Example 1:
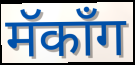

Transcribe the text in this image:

मॅकाँग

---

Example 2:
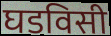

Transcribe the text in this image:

घडविसी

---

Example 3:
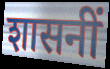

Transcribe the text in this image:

शासनीं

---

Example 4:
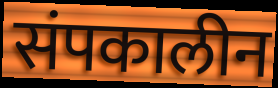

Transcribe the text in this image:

संपकालीन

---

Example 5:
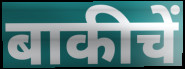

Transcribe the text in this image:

बाकीचें